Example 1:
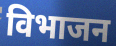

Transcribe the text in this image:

विभाजन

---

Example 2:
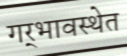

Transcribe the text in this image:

गर्भावस्थेत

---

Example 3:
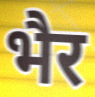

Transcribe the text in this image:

भैर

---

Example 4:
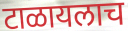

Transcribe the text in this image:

टाळायलाच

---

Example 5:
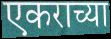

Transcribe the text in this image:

एकराच्या